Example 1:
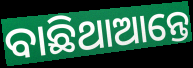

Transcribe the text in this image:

ବାଛିଥାଆନ୍ତେ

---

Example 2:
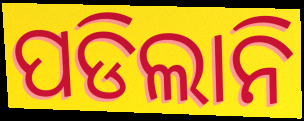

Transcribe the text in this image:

ପଡିଲାନି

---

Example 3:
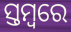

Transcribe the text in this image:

ସ୍ତମ୍ବରେ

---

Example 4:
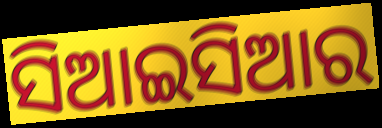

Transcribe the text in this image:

ସିଆଇସିଆର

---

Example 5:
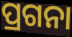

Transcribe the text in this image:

ପ୍ରଗନା